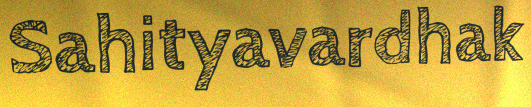
Sahityavardhak